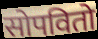
सोपवितो